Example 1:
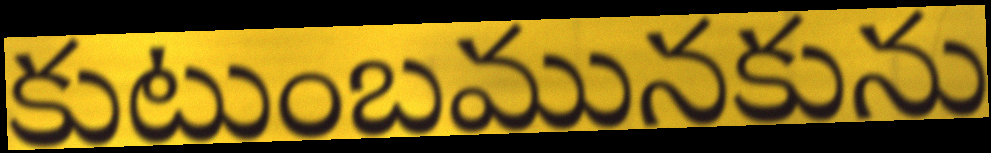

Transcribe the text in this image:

కుటుంబమునకును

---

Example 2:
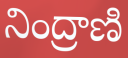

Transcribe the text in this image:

నింద్రాణి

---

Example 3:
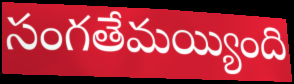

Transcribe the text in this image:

సంగతేమయ్యింది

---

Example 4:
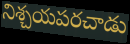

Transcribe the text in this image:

నిశ్చయపరచాడు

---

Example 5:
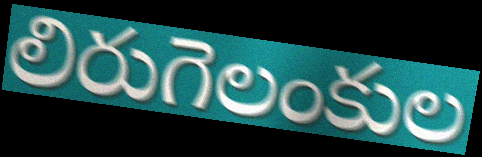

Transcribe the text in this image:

లిరుగెలంకుల